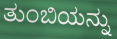
ತುಂಬಿಯನ್ನು